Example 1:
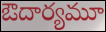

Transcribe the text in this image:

ఔదార్యమూ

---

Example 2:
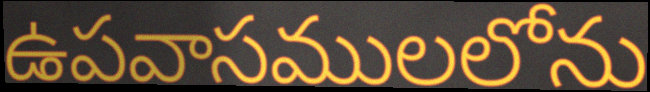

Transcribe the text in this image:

ఉపవాసములలోను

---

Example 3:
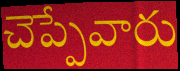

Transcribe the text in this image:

చెప్పేవారు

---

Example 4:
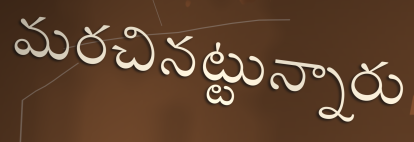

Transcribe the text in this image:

మరచినట్టున్నారు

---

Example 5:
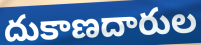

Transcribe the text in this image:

దుకాణదారుల